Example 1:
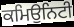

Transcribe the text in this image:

ਕਮਿਉਨਿਟੀ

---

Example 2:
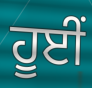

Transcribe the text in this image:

ਹੂਈਂ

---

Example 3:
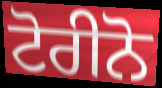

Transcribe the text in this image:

ਟੋਰੀਨੋ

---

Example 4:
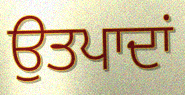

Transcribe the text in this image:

ਉਤਪਾਦਾਂ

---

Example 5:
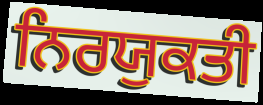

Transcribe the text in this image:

ਨਿਰਯੁਕਤੀ